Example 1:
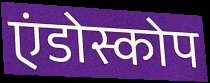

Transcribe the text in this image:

एंडोस्कोप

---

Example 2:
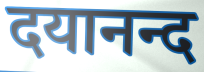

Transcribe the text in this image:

दयानन्द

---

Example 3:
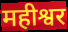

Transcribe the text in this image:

महीश्वर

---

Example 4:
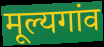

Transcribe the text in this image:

मूल्यगांव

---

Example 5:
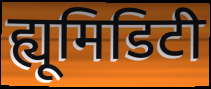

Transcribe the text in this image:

ह्यूमिडिटी